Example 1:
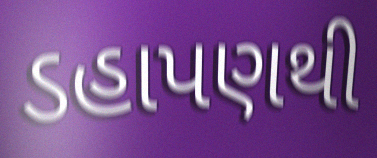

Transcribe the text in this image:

ડહાપણથી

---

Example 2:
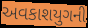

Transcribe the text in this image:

અવકાશયુગની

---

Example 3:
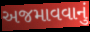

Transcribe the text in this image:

અજમાવવાનું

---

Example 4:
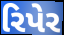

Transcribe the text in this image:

રિપેર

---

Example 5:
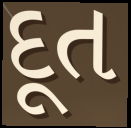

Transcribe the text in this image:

દૂત